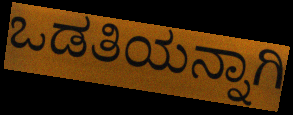
ಒಡತಿಯನ್ನಾಗಿ